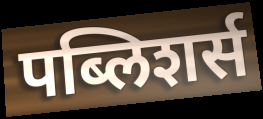
पब्लिशर्स